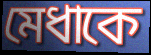
মেধাকে